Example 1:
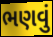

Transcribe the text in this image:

ભણવું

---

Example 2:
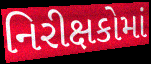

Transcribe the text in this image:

નિરીક્ષકોમાં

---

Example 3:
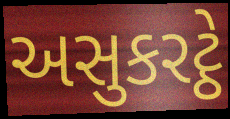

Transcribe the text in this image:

અસુકરટ્ઠે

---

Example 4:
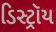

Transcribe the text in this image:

ડિસ્ટ્રૉય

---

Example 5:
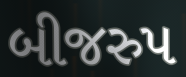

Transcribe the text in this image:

બીજરુપ